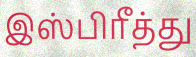
இஸ்பிரீத்து